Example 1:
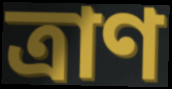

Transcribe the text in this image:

ত্রাণ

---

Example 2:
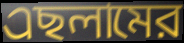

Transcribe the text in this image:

এছলামের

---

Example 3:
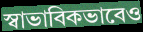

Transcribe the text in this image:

স্বাভাবিকভাবেও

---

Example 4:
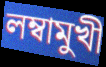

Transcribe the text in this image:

লম্বামুখী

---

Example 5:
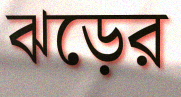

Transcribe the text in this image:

ঝড়ের